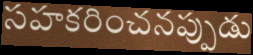
సహకరించనప్పుడు